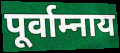
पूर्वाम्नाय